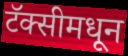
टॅक्सीमधून